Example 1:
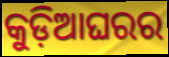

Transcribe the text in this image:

କୁଡ଼ିଆଘରର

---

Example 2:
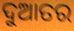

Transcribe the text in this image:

ଦୁଆତର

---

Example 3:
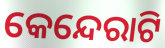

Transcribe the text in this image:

କେନ୍ଦେରାଟି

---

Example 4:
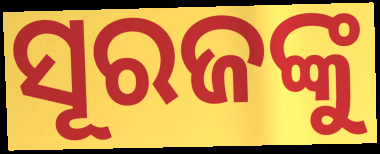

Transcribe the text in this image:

ସୂରଜଙ୍କୁ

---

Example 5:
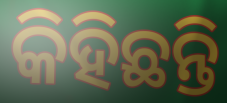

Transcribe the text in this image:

କିହିଛନ୍ତି